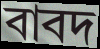
বাবদ